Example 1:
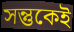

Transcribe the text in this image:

সন্তুকেই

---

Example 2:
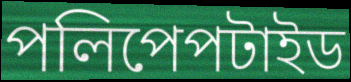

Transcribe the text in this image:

পলিপেপটাইড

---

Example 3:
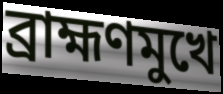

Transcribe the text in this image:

ব্রাহ্মণমুখে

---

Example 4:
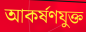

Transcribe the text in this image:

আকর্ষণযুক্ত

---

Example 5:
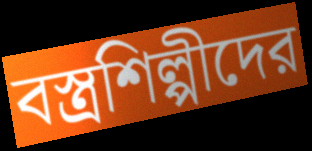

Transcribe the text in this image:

বস্ত্রশিল্পীদের